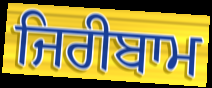
ਜਿਰੀਬਾਮ